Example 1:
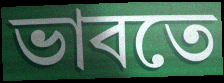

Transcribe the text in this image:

ভাবতে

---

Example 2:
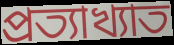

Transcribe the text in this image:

প্রত্যাখ্যাত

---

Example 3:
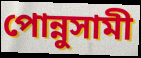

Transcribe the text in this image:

পোন্নুসামী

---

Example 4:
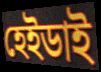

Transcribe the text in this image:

হেইডাই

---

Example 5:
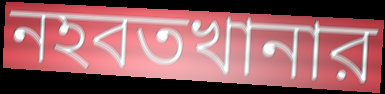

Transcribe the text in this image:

নহবতখানার